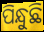
ପିନ୍ଧୁଛି